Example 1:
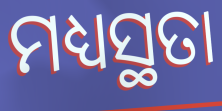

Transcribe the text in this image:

ମଧ୍ୟସ୍ଥତା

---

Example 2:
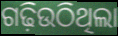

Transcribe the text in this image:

ଗଢ଼ିଉଠିଥିଲା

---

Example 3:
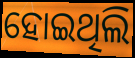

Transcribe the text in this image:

ହୋଇଥିଲି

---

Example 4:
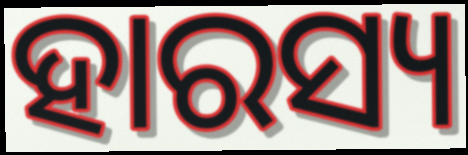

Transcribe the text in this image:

ହାରସ୍ୟ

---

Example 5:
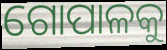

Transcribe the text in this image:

ଗୋପାଳକୁ